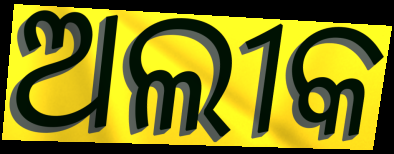
ଅଲୀକ